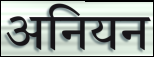
अनियन